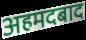
अहमदबाद